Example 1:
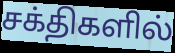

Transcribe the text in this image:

சக்திகளில்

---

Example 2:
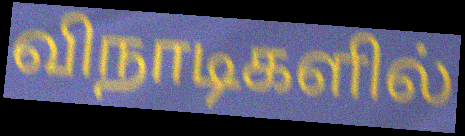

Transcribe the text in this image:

விநாடிகளில்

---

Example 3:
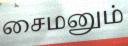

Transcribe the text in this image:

சைமனும்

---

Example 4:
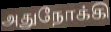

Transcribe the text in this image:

அதுநோக்கி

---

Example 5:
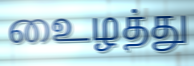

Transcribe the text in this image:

உைழத்து